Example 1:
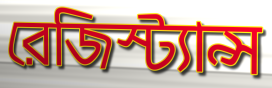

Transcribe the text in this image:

রেজিস্ট্যান্স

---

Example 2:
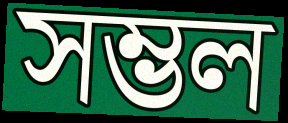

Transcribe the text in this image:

সম্ভল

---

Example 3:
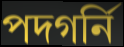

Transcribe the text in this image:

পদগর্নি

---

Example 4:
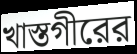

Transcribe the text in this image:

খাস্তগীরের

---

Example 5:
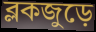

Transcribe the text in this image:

ব্লকজুড়ে